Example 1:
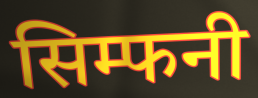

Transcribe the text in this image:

सिम्फनी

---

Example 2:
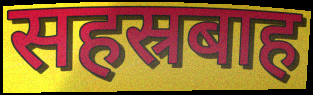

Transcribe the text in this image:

सहस्रबाह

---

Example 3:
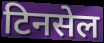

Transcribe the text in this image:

टिनसेल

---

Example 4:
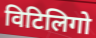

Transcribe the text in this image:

विटिलिगो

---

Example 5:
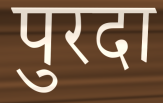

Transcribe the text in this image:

पुरदा